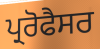
ਪ੍ਰਰੋਫੈਸਰ